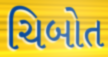
ચિબોત